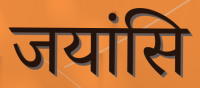
जयांसि